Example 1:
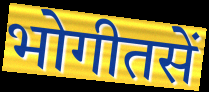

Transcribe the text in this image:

भोगीतसें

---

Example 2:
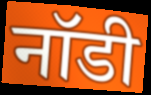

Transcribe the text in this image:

नॉडी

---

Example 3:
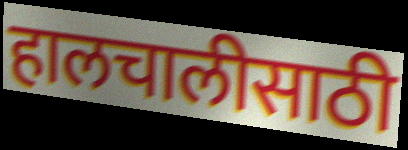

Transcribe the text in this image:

हालचालीसाठी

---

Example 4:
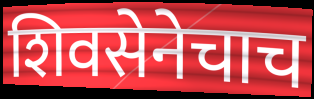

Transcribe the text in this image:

शिवसेनेचाच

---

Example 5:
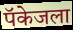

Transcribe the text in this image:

पॅकेजला